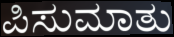
ಪಿಸುಮಾತು